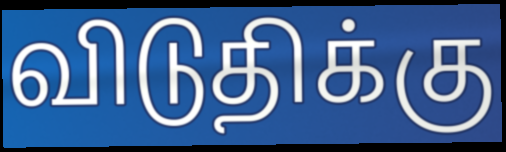
விடுதிக்கு